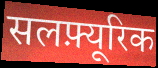
सलफ़्यूरिक